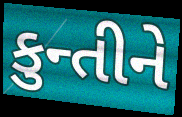
કુન્તીને